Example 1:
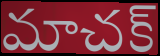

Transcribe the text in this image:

మాచక్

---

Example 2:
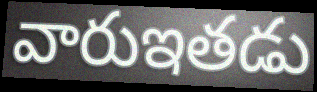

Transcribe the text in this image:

వారుఇతడు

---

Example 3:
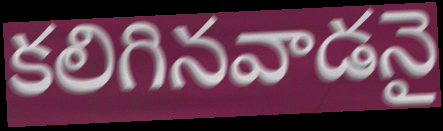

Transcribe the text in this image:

కలిగినవాడనై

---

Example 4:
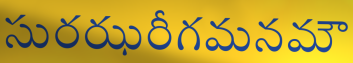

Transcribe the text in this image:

సురఝరీగమనమౌ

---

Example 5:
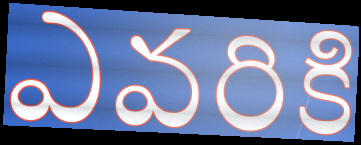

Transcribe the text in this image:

ఎవరికి